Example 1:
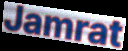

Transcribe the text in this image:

Jamrat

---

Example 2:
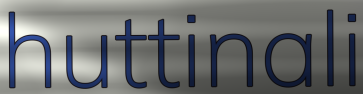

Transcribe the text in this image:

huttinali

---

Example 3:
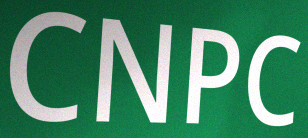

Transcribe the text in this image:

CNPC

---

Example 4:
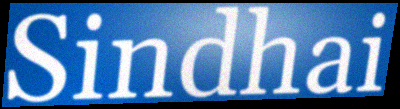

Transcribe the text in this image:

Sindhai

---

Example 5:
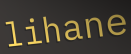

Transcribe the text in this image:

lihane